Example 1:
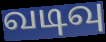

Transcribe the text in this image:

வடிவு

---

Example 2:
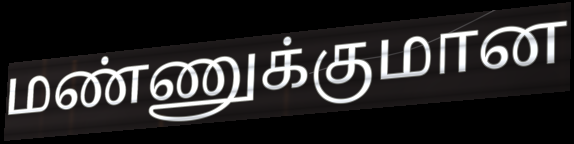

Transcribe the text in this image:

மண்ணுக்குமான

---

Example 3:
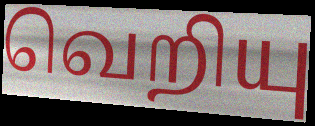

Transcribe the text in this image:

வெறியு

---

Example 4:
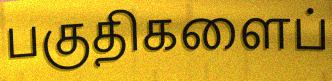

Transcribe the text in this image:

பகுதிகளைப்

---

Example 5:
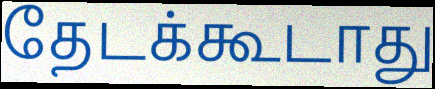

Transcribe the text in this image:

தேடக்கூடாது